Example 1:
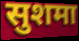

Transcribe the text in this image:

सुशमा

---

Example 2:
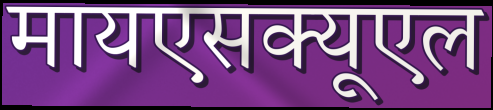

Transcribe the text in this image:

मायएसक्यूएल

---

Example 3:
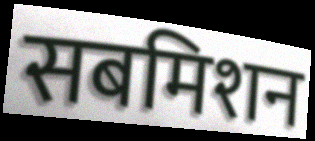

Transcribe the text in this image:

सबमिशन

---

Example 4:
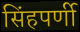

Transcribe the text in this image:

सिंहपर्णी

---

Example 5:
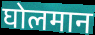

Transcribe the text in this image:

घोलमान